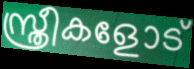
സ്ത്രീകളോട്